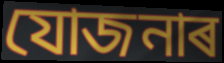
যোজনাৰ